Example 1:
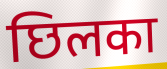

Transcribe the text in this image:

छिलका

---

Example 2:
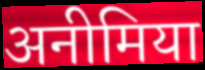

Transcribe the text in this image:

अनीमिया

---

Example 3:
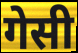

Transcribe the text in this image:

गेसी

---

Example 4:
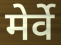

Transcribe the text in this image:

मेर्वे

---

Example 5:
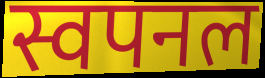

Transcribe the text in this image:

स्वपनल